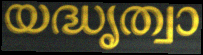
യദ്ധൃത്വാ